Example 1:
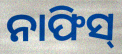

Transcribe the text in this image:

ନାଫିସ୍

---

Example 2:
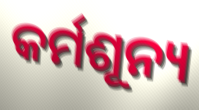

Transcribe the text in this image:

କର୍ମଶୂନ୍ୟ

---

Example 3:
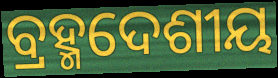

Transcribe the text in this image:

ବ୍ରହ୍ମଦେଶୀୟ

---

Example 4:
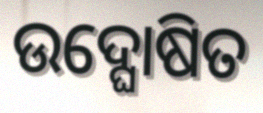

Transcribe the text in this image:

ଉଦ୍ଘୋଷିତ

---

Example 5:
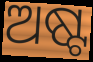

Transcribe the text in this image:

ଅଷ୍ଟ